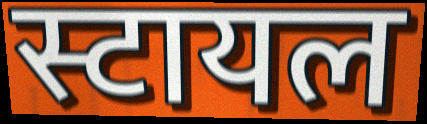
स्टायल